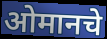
ओमानचे